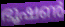
ഭൂഷൺ